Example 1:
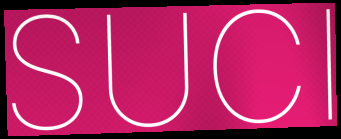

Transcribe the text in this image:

SUCI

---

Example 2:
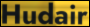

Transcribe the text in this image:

Hudair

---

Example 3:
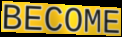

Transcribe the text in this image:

BECOME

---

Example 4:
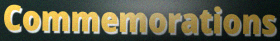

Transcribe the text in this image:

Commemorations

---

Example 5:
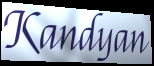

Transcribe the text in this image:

Kandyan